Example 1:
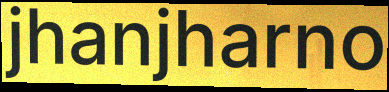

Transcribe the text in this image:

jhanjharno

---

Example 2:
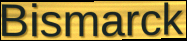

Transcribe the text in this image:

Bismarck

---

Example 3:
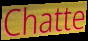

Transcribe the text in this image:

Chatte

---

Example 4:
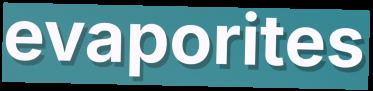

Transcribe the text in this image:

evaporites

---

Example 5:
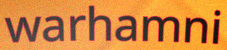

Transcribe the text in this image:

warhamni